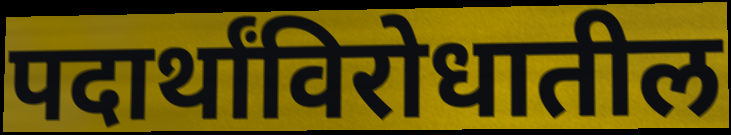
पदार्थांविरोधातील